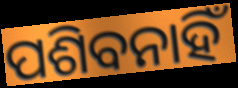
ପଶିବନାହିଁ